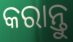
କରାନ୍ତୁ